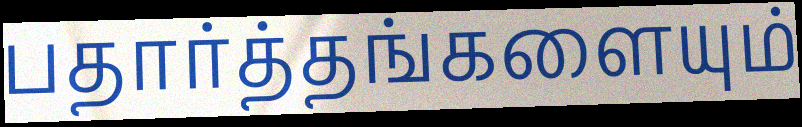
பதார்த்தங்களையும்